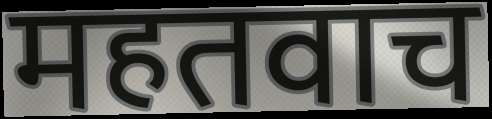
महतवाच